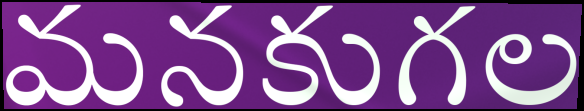
మనకుగల